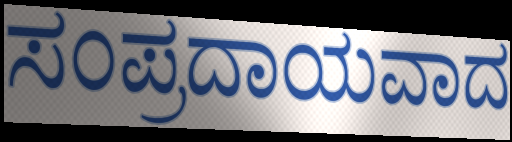
ಸಂಪ್ರದಾಯವಾದ